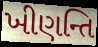
ખીણન્તિ